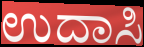
ಉದಾಸಿ